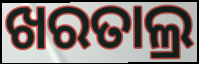
ଖରତାଲ୍ର